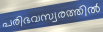
പരിഭവസ്വരത്തിൽ